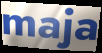
maja